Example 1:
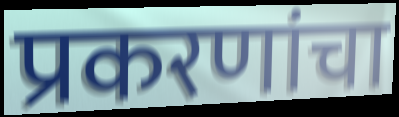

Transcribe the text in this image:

प्रकरणांचा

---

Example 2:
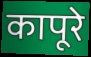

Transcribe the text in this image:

कापूरे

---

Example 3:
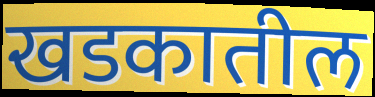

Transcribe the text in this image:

खडकातील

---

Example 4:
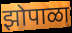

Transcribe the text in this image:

झोपाळा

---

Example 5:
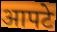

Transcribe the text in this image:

आपटे